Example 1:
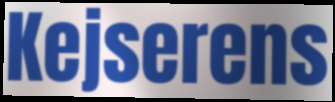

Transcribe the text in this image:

Kejserens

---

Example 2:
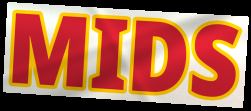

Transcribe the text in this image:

MIDS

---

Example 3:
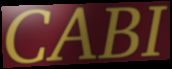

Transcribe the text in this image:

CABI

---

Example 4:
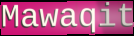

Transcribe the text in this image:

Mawaqit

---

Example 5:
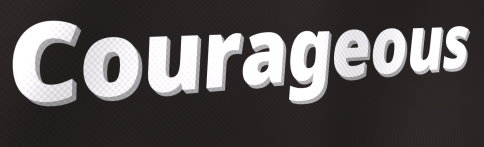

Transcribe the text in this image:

Courageous